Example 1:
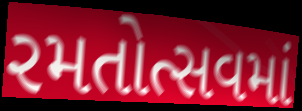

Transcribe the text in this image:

રમતોત્સવમાં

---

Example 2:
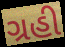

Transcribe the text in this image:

ગ્રહી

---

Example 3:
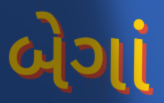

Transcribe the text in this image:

બેગાં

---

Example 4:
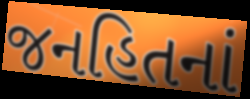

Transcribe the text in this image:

જનહિતનાં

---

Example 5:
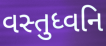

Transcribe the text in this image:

વસ્તુધ્વનિ